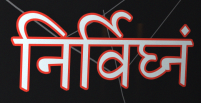
निर्विघ्नं